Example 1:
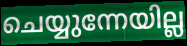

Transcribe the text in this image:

ചെയ്യുന്നേയില്ല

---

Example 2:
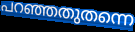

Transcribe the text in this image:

പറഞ്ഞതുതന്നെ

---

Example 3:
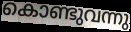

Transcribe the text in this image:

കൊണ്ടുവന്നു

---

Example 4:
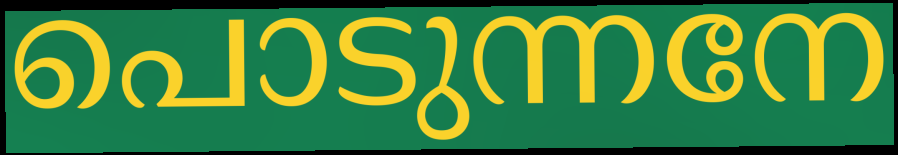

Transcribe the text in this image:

പൊടുന്നനേ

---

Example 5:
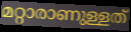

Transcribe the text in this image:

മറ്റാരാണുള്ളത്